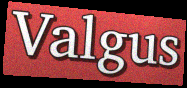
Valgus